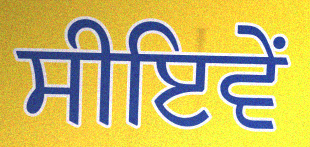
ਸੀਇਵੇਂ